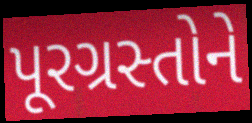
પૂરગ્રસ્તોને